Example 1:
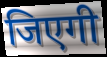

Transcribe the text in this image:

जिएगी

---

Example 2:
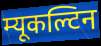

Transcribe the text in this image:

म्यूकल्टिन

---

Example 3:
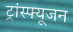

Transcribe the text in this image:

ट्रांस्फ्यूजन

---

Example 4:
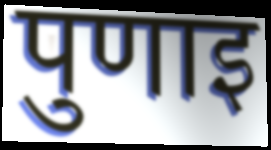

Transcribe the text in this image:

पुणाइ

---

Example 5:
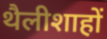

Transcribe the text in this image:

थैलीशाहों